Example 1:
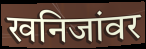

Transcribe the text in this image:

खनिजांवर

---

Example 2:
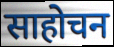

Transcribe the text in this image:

साहोचन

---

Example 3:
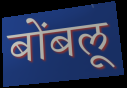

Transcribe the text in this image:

बोंबलू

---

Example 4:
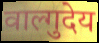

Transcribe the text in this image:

वाल्गुदेय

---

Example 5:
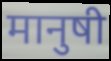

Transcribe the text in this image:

मानुषी